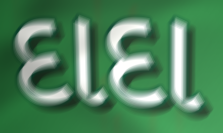
દાદા